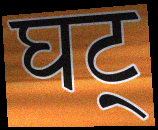
घट्